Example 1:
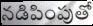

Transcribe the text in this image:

నడిపింపుతో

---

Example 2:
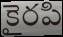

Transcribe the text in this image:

కైరపి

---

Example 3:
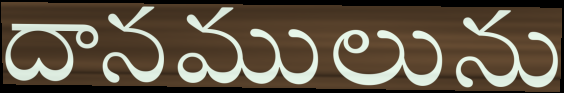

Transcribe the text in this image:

దానములును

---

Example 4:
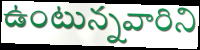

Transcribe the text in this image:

ఉంటున్నవారిని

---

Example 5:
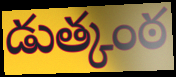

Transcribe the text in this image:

డుత్కంఠ